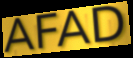
AFAD